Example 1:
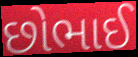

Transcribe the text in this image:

છોભાઈ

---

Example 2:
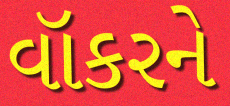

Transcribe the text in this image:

વૉકરને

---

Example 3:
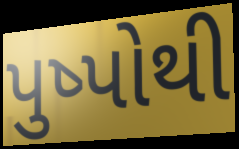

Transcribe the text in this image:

પુષ્પોથી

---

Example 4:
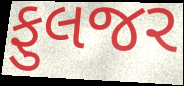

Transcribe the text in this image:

ફુલજર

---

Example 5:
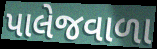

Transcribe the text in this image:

પાલેજવાળા